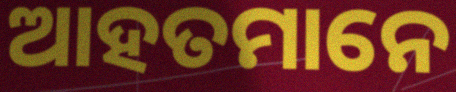
ଆହତମାନେ